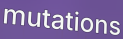
mutations